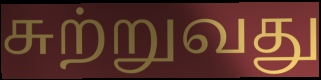
சுற்றுவது